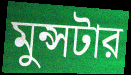
মুন্সটার